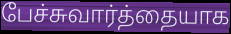
பேச்சுவார்த்தையாக